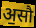
अ॒सौ